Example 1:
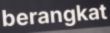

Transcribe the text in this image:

berangkat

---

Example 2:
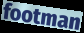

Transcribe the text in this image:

footman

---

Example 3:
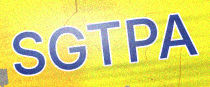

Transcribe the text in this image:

SGTPA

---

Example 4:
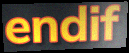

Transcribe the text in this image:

endif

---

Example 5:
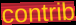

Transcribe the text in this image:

contrib